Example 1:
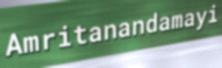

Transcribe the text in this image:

Amritanandamayi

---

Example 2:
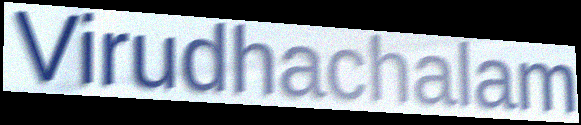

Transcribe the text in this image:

Virudhachalam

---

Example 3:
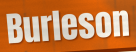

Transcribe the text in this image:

Burleson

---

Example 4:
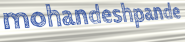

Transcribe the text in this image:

mohandeshpande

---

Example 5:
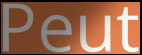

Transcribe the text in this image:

Peut